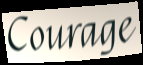
Courage